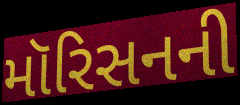
મૉરિસનની